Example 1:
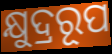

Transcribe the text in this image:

କ୍ଷୁଦ୍ରରୂପ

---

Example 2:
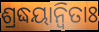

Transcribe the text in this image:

ଶ୍ରଦ୍ଧୟାନ୍ୱିତାଃ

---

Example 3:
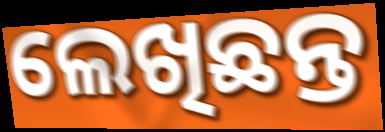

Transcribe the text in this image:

ଲେଖିଛନ୍ତ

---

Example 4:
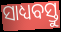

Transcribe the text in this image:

ସାଧ୍ୟବସ୍ତୁ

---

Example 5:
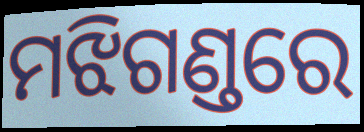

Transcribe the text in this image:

ମଝିଗଣ୍ଡରେ